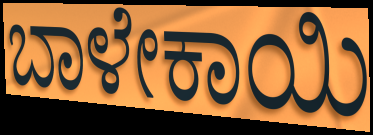
ಬಾಳೇಕಾಯಿ